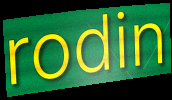
rodin